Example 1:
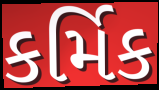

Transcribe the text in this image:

કર્મિક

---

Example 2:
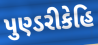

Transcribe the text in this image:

પુણ્ડરીકેહિ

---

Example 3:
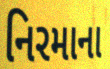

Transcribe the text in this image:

નિરમાના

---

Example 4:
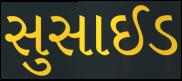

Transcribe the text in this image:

સુસાઈડ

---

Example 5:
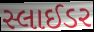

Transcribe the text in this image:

સ્લાઈડર